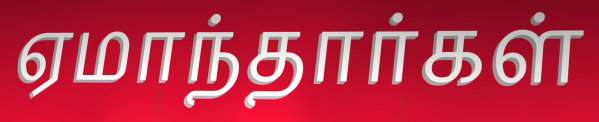
ஏமாந்தார்கள்